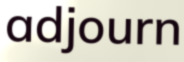
adjourn